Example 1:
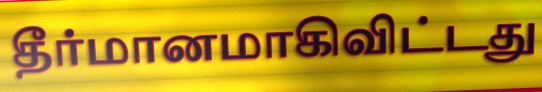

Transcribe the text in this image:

தீர்மானமாகிவிட்டது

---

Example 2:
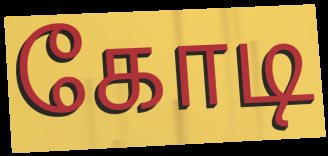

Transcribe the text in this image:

கோடி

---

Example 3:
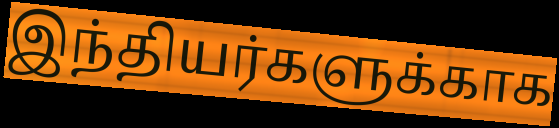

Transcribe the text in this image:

இந்தியர்களுக்காக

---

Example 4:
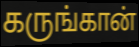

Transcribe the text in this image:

கருங்கான்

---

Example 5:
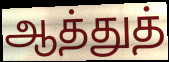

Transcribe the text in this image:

ஆத்துத்